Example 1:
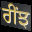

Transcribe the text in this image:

ਰੀਂਝ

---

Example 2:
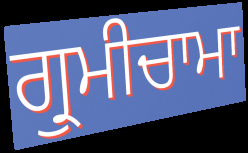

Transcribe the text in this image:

ਗ੍ਰੁਮੀਚਾਮਾ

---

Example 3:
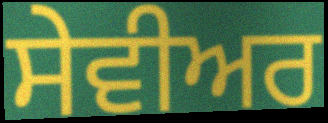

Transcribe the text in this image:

ਸੇਵੀਅਰ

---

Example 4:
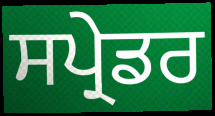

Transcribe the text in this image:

ਸਪ੍ਰੇਡਰ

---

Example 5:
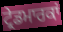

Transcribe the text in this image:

ਟ੍ਰੇਡਮਾਰਕਾਂ